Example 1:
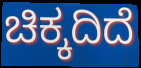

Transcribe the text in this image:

ಚಿಕ್ಕದಿದೆ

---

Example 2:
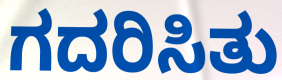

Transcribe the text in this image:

ಗದರಿಸಿತು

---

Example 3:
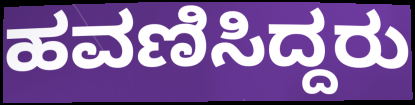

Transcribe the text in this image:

ಹವಣಿಸಿದ್ದರು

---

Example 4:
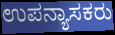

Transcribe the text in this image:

ಉಪನ್ಯಾಸಕರು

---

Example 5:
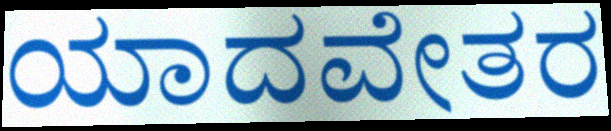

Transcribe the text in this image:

ಯಾದವೇತರ